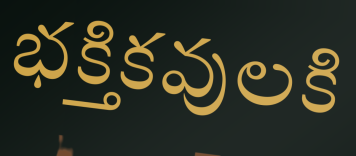
భక్తికవులకి